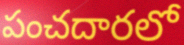
పంచదారలో